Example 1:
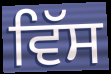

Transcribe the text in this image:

ਵਿੱਸ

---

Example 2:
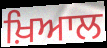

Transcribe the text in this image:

ਖ਼ਿਆਲ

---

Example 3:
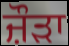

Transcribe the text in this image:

ਜ਼ੌੜਾ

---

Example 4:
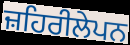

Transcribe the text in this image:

ਜ਼ਹਿਰੀਲੇਪਨ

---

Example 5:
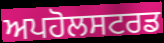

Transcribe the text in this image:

ਅਪਹੋਲਸਟਰਡ